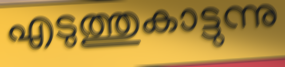
എടുത്തുകാട്ടുന്നു